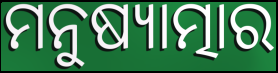
ମନୁଷ୍ୟାତ୍ମାର